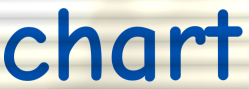
chart